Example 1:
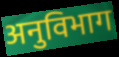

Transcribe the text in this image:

अनुविभाग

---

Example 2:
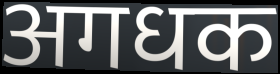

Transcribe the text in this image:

अगधक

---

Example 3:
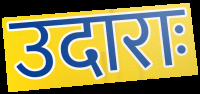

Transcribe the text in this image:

उदाराः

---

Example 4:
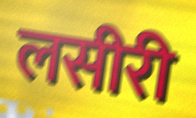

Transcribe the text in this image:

लसीरी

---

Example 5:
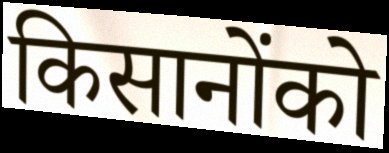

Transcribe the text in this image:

किसानोंको